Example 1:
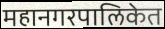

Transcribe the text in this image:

महानगरपालिकेत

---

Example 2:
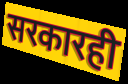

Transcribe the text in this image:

सरकारही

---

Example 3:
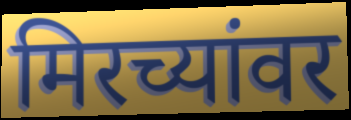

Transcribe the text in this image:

मिरच्यांवर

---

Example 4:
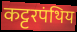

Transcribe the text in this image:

कट्टरपंथिय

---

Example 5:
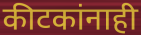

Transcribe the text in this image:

कीटकांनाही